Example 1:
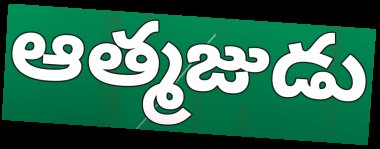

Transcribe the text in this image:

ఆత్మజుడు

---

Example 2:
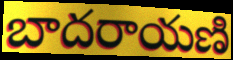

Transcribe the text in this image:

బాదరాయణి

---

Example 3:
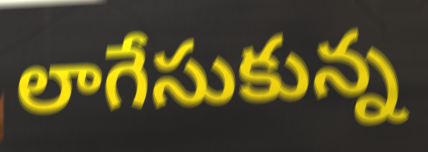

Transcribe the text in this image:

లాగేసుకున్న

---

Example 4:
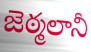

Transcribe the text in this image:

జెఠ్మలానీ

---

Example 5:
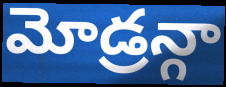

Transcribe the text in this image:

మోడ్రన్గా